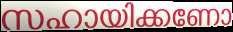
സഹായിക്കണോ